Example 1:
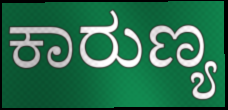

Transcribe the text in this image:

ಕಾರುಣ್ಯ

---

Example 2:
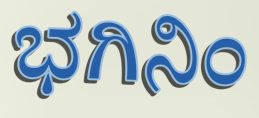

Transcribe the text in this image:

ಭಗಿನಿಂ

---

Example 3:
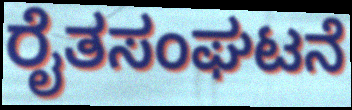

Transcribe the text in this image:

ರೈತಸಂಘಟನೆ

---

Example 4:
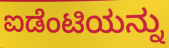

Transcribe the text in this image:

ಐಡೆಂಟಿಯನ್ನು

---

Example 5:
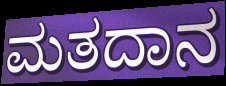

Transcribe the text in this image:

ಮತದಾನ